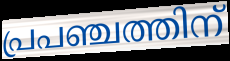
പ്രപഞ്ചത്തിന്